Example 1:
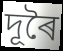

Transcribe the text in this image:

দূৰৈ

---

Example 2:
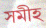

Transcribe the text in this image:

সমীহ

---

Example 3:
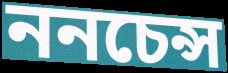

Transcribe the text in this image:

ননচেন্স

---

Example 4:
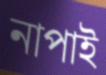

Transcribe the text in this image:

নাপাই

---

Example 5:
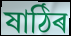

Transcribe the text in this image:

ষাঠিৰ